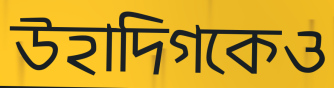
উহাদিগকেও